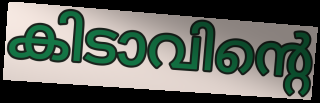
കിടാവിന്റെ